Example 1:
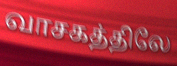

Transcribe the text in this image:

வாசகத்திலே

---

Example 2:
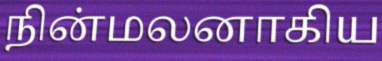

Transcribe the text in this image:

நின்மலனாகிய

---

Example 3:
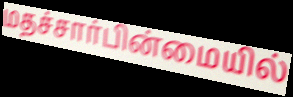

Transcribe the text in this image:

மதச்சார்பின்மையில்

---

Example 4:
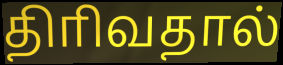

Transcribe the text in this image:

திரிவதால்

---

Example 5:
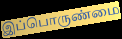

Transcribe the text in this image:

இப்பொருண்மை